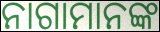
ନାଗାମାନଙ୍କ